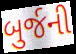
બુર્જની